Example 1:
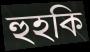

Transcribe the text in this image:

হুহকি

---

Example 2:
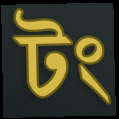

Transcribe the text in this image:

টং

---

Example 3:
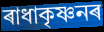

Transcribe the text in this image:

ৰাধাকৃষ্ণনৰ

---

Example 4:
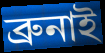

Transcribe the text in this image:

ব্ৰুনাই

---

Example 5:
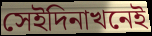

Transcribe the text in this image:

সেইদিনাখনেই